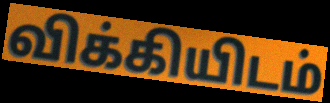
விக்கியிடம்